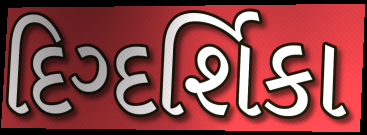
દિગ્દર્શિકા